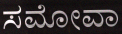
ಸಮೋವಾ